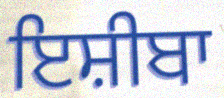
ਇਸ਼ੀਬਾ